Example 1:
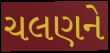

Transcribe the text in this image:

ચલણને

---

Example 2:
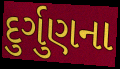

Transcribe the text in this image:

દુર્ગુણના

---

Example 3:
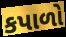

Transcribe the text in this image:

કપાળો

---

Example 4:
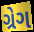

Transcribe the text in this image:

ગ્રેગ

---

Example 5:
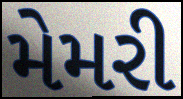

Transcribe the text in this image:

મેમરી